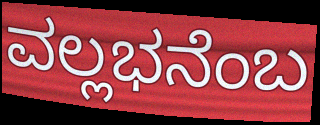
ವಲ್ಲಭನೆಂಬ